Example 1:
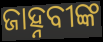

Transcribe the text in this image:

ଜାହ୍ନବୀଙ୍କ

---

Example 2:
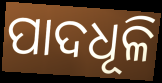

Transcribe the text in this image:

ପାଦଧୂଳି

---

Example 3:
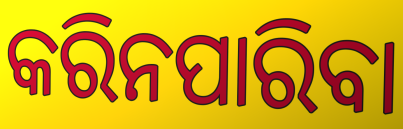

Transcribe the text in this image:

କରିନପାରିବା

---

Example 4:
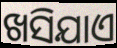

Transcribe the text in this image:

ଖସିଯାଏ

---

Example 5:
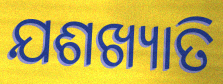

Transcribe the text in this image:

ଯଶଖ୍ୟାତି